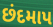
છંદમાપ